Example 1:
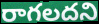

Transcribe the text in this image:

రాగలదని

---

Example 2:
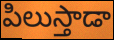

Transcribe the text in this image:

పిలుస్తాడా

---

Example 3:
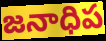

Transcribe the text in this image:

జనాధిప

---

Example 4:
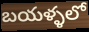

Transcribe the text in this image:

బయళ్ళలో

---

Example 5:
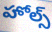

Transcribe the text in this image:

హోల్స్